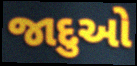
જાદુઓ